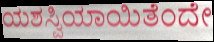
ಯಶಸ್ವಿಯಾಯಿತೆಂದೇ